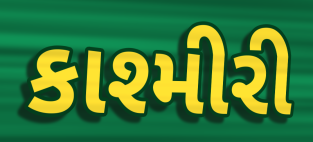
કાશ્મીરી